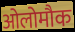
ओलोमौक